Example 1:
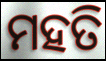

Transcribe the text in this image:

ମହତି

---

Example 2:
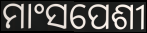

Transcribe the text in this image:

ମାଂସପେଶୀ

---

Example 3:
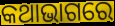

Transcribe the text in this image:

କଥାଭାଗରେ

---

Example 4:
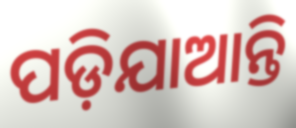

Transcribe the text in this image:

ପଡ଼ିଯାଆନ୍ତି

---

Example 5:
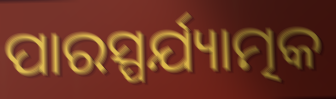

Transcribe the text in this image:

ପାରସ୍ପର୍ଯ୍ୟାତ୍ମକ